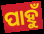
ପାହୁଁ